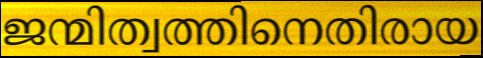
ജന്മിത്വത്തിനെതിരായ